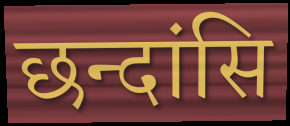
छन्दांसि